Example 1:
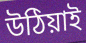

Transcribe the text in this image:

উঠিয়াই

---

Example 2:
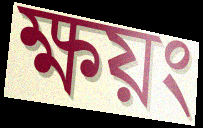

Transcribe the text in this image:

ক্ষয়ং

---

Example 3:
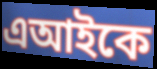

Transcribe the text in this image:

এআইকে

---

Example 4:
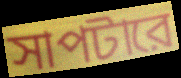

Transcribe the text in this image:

সাপটারে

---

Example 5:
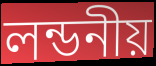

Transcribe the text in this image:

লন্ডনীয়